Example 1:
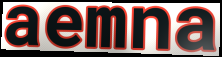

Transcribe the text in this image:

aemna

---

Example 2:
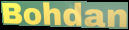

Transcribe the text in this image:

Bohdan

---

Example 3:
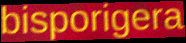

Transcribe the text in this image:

bisporigera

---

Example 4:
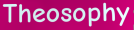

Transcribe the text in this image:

Theosophy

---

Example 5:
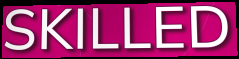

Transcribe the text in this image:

SKILLED